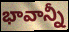
భావాన్నీ